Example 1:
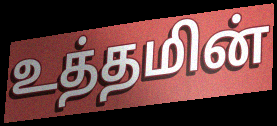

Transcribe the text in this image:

உத்தமின்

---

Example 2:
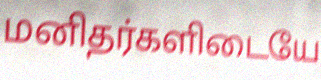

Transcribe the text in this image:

மனிதர்களிடையே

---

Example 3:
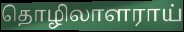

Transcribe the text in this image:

தொழிலாளராய்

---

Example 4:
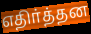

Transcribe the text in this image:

எதிர்த்தன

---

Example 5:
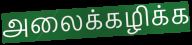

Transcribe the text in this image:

அலைக்கழிக்க